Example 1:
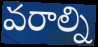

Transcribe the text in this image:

వరాల్ని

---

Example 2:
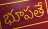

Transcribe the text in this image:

భూపతే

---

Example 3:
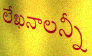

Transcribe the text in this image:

లేఖనాలన్నీ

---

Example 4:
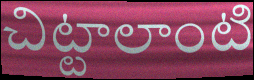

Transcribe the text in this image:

చిట్టాలాంటి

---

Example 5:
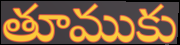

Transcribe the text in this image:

తూముకు